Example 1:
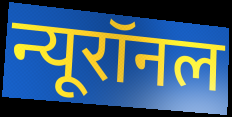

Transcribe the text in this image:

न्यूरॉनल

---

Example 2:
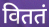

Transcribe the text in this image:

विततं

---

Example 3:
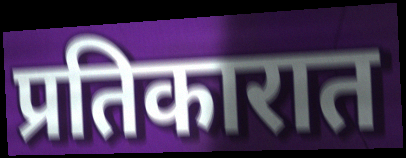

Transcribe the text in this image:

प्रतिकारात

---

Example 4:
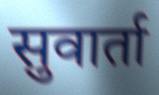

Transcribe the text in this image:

सुवार्ता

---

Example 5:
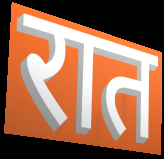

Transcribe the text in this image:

रात